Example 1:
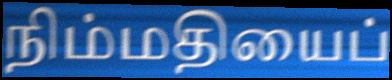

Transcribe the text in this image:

நிம்மதியைப்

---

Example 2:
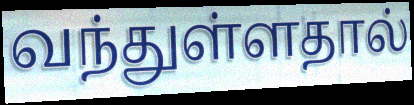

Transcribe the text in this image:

வந்துள்ளதால்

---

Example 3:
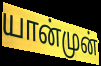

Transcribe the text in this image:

யான்முன்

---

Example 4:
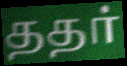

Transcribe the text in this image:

ததர்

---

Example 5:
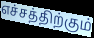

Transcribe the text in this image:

எச்சத்திற்கும்